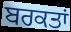
ਬਰਕਤਾਂ